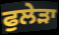
ਫੁਲੇੜਾ